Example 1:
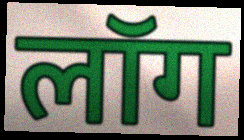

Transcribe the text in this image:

लॉग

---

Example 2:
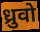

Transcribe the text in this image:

ध्रुवो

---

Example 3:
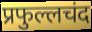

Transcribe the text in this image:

प्रफुल्लचंद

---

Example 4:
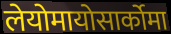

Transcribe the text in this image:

लेयोमायोसार्कोमा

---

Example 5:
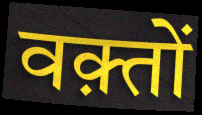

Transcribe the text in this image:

वक़्तों